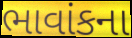
ભાવાંકના